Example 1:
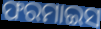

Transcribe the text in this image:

ଫରମାଇସ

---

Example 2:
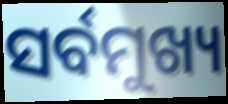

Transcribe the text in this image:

ସର୍ବମୁଖ୍ୟ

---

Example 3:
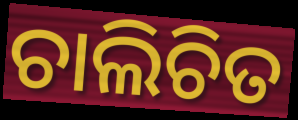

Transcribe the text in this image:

ଚାଲିଚିତ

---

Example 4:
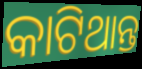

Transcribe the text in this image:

କାଟିଥାନ୍ତ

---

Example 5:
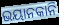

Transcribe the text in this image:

ଭୟାନକାନି